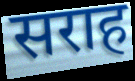
सराह